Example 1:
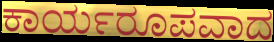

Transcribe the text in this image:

ಕಾರ್ಯರೂಪವಾದ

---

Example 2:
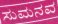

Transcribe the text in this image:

ಸುಮನವ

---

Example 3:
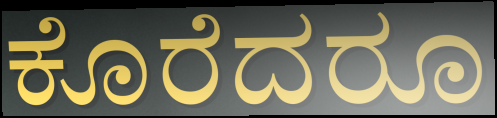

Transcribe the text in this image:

ಕೊರೆದರೂ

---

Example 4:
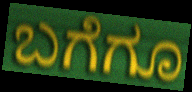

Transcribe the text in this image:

ಬಗೆಗೂ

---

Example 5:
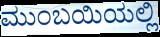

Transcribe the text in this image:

ಮುಂಬಯಿಯಲ್ಲಿ